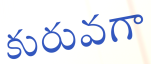
కురువగా